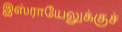
இஸ்ராயேலுக்குச்